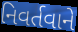
નિવર્તવાને